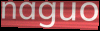
naguo